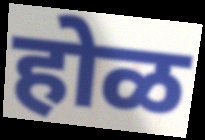
होळ